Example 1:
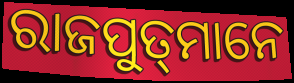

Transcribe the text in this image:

ରାଜପୁତ୍‍ମାନେ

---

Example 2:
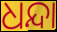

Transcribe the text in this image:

ଧନ୍ଦା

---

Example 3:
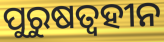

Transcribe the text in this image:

ପୁରୁଷତ୍ୱହୀନ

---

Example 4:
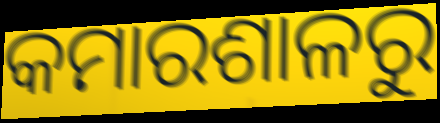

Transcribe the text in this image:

କମାରଶାଳରୁ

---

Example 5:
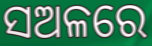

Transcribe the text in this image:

ସଅଳରେ